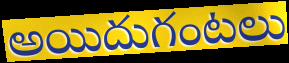
అయిదుగంటలు